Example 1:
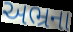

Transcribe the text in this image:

અભ્રના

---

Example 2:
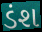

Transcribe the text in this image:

ડંશ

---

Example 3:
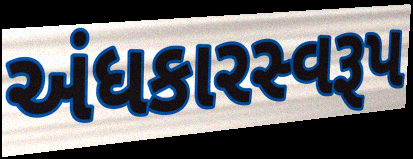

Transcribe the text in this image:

અંધકારસ્વરૂપ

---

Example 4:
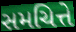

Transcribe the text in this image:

સમચિત્તે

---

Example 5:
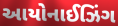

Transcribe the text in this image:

આયોનાઈઝિંગ